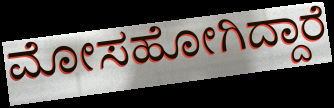
ಮೋಸಹೋಗಿದ್ದಾರೆ